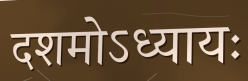
दशमोऽध्यायः